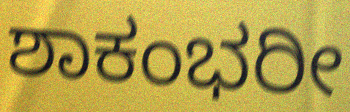
ಶಾಕಂಭರೀ